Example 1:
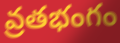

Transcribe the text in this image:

వ్రతభంగం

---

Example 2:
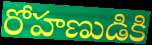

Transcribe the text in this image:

రోహణుడికి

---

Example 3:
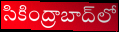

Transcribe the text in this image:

సికింద్రాబాద్‌లో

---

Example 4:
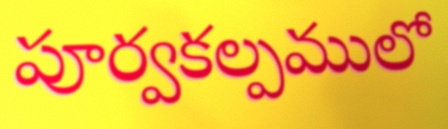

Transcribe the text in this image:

పూర్వకల్పములో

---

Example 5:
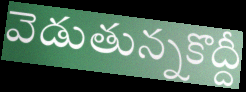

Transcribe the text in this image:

వెడుతున్నకొద్దీ